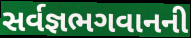
સર્વજ્ઞભગવાનની